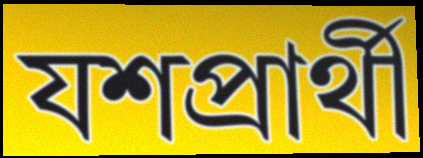
যশপ্রার্থী